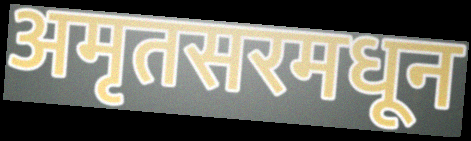
अमृतसरमधून